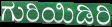
ಗುರಿಯಿಡಿರಿ